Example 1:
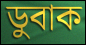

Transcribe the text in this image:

ডুবাক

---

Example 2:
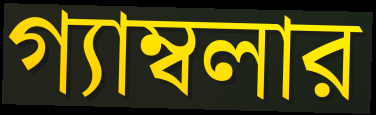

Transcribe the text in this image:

গ্যাম্বলার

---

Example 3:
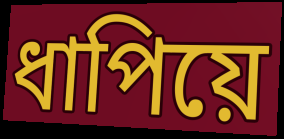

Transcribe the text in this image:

ধাপিয়ে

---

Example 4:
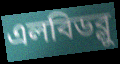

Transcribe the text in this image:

এলবিডব্লু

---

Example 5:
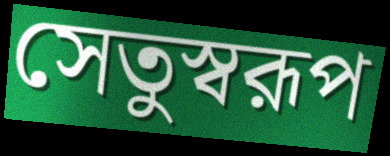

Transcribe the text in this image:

সেতুস্বরূপ